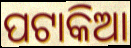
ପଟାକିଆ